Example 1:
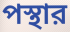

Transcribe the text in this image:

পস্থার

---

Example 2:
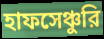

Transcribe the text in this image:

হাফসেঞ্চুরি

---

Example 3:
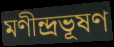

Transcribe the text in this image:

মণীন্দ্রভূষণ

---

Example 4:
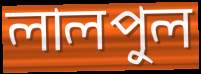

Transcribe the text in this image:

লালপুল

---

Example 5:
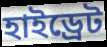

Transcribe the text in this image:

হাইড্রেট